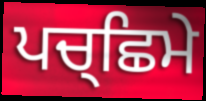
ਪਚ੍ਛਿਮੇ